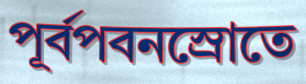
পূর্বপবনস্রোতে